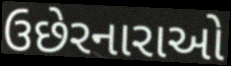
ઉછેરનારાઓ